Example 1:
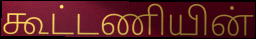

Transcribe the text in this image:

கூட்டணியின்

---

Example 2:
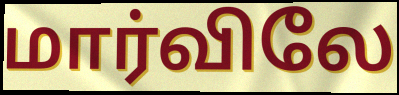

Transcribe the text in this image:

மார்விலே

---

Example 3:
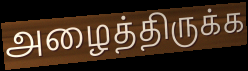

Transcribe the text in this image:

அழைத்திருக்க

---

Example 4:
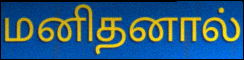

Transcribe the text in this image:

மனிதனால்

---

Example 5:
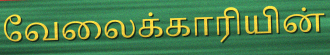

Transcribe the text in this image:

வேலைக்காரியின்